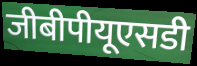
जीबीपीयूएसडी